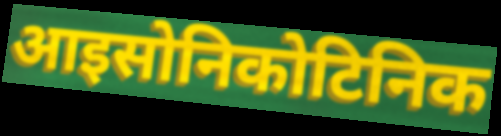
आइसोनिकोटिनिक